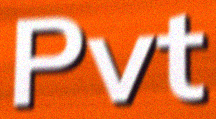
Pvt